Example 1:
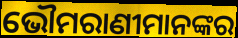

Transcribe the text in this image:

ଭୌମରାଣୀମାନଙ୍କର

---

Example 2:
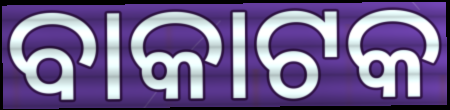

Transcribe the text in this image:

ବାକାଟକ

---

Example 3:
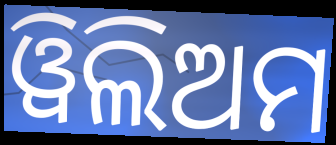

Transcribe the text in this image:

ୱିଲିଅମ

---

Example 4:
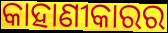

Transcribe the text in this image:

କାହାଣୀକାରର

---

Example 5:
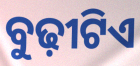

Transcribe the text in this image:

ବୁଢ଼ୀଟିଏ